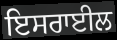
ਇਸਰਾਈਲ